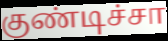
குண்டிச்சா